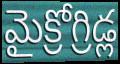
మైక్రోగ్రిడ్ల